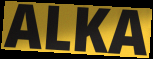
ALKA